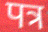
पत्र